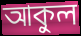
আকুল